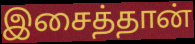
இசைத்தான்